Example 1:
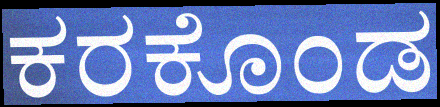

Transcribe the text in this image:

ಕರಕೊಂಡ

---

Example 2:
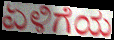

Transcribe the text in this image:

ಏಳಿಗೆಯ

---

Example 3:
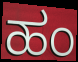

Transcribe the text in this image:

ಹಂ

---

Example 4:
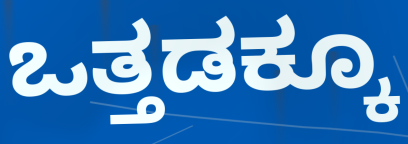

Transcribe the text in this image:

ಒತ್ತಡಕ್ಕೂ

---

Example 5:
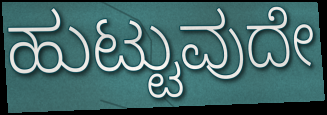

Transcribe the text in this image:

ಹುಟ್ಟುವುದೇ